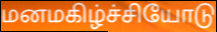
மனமகிழ்ச்சியோடு